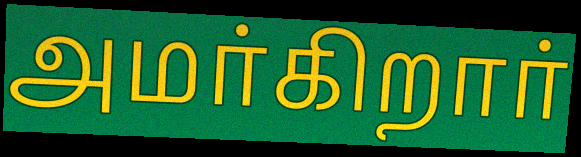
அமர்கிறார்